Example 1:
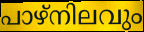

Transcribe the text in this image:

പാഴ്നിലവും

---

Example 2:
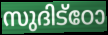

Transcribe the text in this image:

സുദിട്ഠോ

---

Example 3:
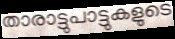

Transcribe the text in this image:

താരാട്ടുപാട്ടുകളുടെ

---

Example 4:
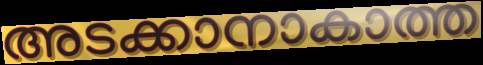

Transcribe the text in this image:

അടക്കാനാകാത്ത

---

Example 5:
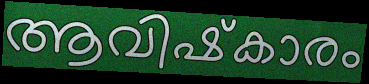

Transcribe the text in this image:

ആവിഷ്‌കാരം